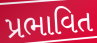
પ્રભાવિત